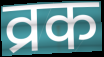
व्रक